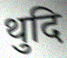
थुदि